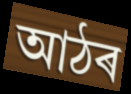
আঠৰ